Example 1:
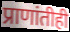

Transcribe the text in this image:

प्राणांतीही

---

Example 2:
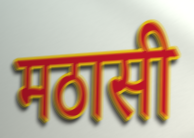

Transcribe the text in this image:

मठासी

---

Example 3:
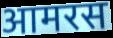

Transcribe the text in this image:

आमरस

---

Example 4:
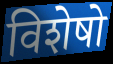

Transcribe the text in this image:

विशेषो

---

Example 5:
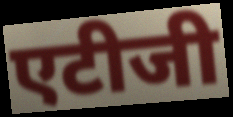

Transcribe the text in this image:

एटीजी